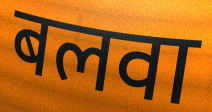
बलवा